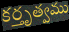
కర్తృత్వము